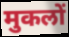
मुकलों